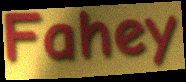
Fahey